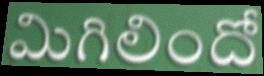
మిగిలిందో